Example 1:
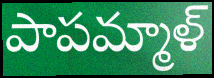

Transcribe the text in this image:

పాపమ్మాళ్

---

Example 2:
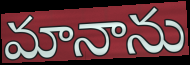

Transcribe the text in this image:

మానాను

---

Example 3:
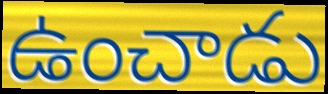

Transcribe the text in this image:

ఉంచాడు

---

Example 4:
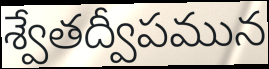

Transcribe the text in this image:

శ్వేతద్వీపమున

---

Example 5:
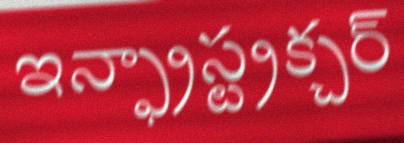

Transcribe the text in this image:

ఇన్ఫ్రాస్ట్రక్చర్